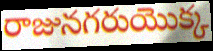
రాజునగరుయొక్క